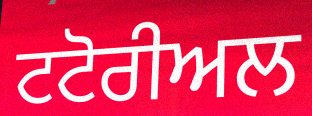
ਟਟੋਰੀਅਲ